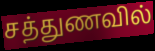
சத்துணவில்